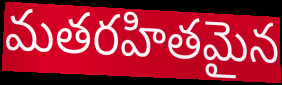
మతరహితమైన